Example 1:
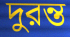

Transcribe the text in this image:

দুরন্ত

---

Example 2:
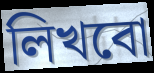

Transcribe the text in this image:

লিখবো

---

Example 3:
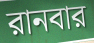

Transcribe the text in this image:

রানবার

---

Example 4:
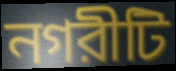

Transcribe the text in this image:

নগরীটি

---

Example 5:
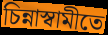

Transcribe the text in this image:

চিন্নাস্বামীতে